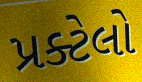
પ્રક્ટેલો